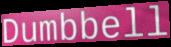
Dumbbell